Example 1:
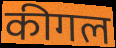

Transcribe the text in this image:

कीगल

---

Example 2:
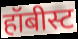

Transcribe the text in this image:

हॉबीस्ट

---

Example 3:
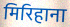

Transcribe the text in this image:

मिरिहाना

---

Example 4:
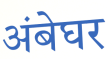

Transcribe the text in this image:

अंबेघर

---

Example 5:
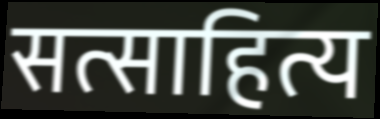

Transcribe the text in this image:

सत्साहित्य